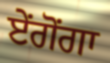
ਏਂਗੋਂਗਾ